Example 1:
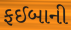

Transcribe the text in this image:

ફઈબાની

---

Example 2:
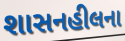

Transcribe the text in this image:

શાસનહીલના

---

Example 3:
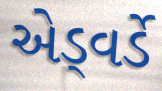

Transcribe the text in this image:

એડ્વર્ડે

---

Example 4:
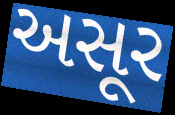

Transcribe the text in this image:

અસૂર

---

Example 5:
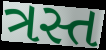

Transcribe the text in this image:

ત્રસ્ત